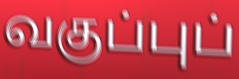
வகுப்புப்